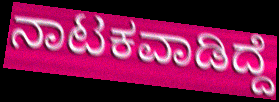
ನಾಟಕವಾಡಿದ್ದೆ